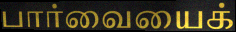
பார்வையைக்